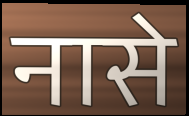
नासे